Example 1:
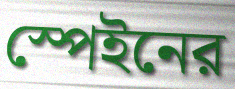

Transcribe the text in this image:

স্পেইনের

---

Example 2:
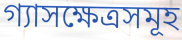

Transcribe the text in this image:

গ্যাসক্ষেত্রসমূহ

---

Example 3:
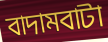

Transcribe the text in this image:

বাদামবাটা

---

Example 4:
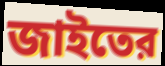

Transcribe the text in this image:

জাইতের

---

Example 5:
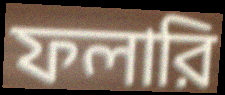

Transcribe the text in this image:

ফলারি